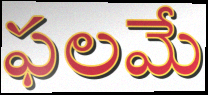
ఫలమే